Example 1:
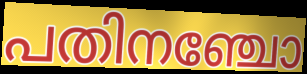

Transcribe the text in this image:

പതിനഞ്ചോ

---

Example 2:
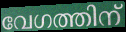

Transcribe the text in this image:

വേഗത്തിന്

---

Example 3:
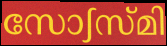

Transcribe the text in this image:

സോഽസ്മി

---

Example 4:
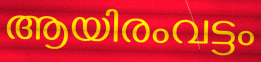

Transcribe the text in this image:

ആയിരംവട്ടം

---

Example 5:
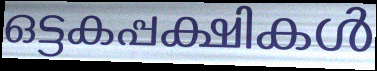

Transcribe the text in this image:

ഒട്ടകപ്പക്ഷികൾ